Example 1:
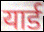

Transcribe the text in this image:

यार्ड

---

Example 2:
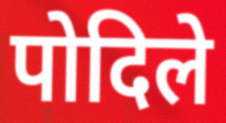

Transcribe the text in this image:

पोदिले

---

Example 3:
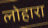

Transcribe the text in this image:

लोहारा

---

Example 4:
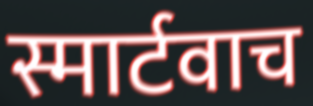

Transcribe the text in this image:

स्मार्टवाच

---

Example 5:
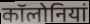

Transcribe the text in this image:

कॉलोनियां